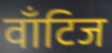
वाँटिज